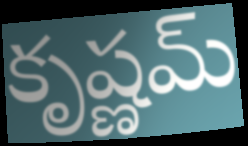
కృష్ణమ్